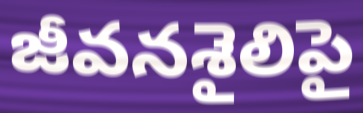
జీవనశైలిపై